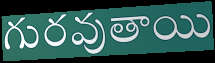
గురవుతాయి